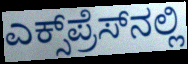
ಎಕ್ಸ್‌ಪ್ರೆಸ್‌ನಲ್ಲಿ